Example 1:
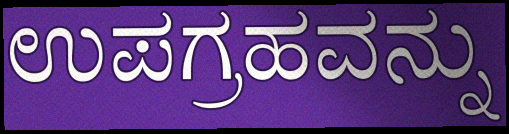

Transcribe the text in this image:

ಉಪಗ್ರಹವನ್ನು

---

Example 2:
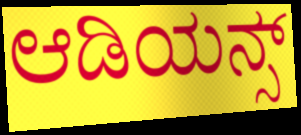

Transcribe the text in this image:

ಆಡಿಯನ್ಸ್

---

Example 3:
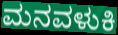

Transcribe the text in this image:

ಮನವಳುಕಿ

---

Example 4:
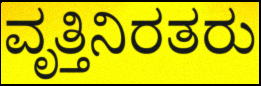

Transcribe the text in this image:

ವೃತ್ತಿನಿರತರು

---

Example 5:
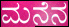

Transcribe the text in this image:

ಮನೆನ